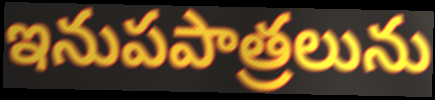
ఇనుపపాత్రలును